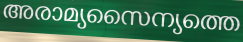
അരാമ്യസൈന്യത്തെ